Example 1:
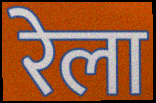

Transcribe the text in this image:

रेला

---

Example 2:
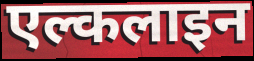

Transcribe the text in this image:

एल्कलाइन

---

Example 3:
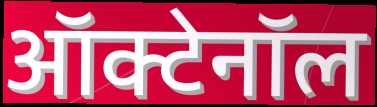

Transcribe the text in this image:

ऑक्टेनॉल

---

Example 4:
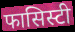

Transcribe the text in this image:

फासिस्टी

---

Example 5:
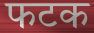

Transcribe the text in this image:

फटक